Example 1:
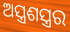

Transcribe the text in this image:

ଅସ୍ତ୍ରଶସ୍ତ୍ରର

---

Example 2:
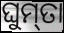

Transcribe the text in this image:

ଘୁମ୍‌ତା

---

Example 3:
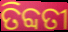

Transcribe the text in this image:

ତିବ୍ଦତୀ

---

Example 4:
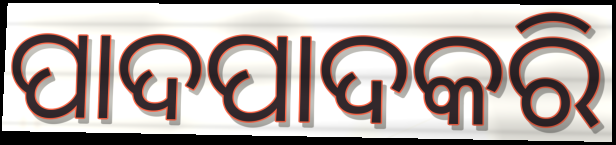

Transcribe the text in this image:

ପାଦପାଦକରି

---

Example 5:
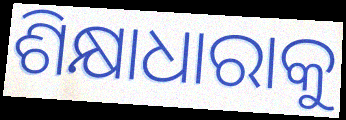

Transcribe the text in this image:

ଶିକ୍ଷାଧାରାକୁ